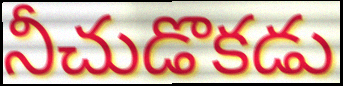
నీచుడొకడు